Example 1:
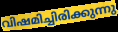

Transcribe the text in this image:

വിഷമിച്ചിരിക്കുന്നു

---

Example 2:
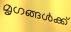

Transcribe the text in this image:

മൃഗങ്ങൾക്ക്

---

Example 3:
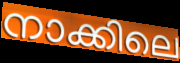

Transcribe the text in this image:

നാക്കിലെ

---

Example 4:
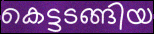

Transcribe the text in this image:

കെട്ടടങ്ങിയ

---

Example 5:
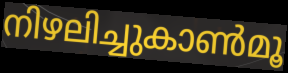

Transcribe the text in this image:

നിഴലിച്ചുകാൺമൂ